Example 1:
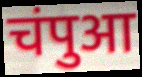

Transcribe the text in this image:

चंपुआ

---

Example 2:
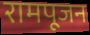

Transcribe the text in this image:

रामपूजन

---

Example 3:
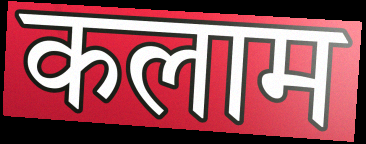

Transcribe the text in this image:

कलाम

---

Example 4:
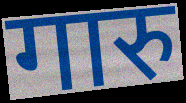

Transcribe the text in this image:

गारु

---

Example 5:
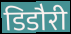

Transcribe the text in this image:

डिडौरी